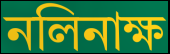
নলিনাক্ষ